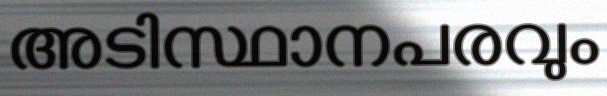
അടിസ്ഥാനപരവും